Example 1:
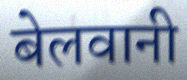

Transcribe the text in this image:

बेलवानी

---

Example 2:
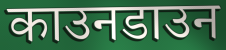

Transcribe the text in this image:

काउनडाउन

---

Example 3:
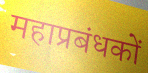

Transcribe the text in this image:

महाप्रबंधकों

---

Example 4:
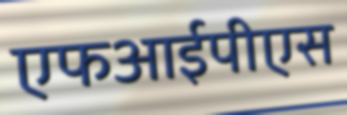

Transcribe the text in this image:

एफआईपीएस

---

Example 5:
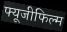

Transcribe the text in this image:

फ्यूजीफिल्म